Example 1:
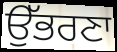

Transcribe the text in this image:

ਉੱਭਰਣਾ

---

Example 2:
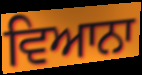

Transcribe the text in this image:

ਵਿਆਨਾ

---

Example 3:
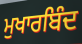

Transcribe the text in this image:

ਮੁਖਾਰਬਿੰਦ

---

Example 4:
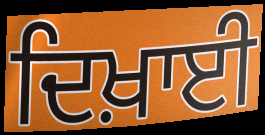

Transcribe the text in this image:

ਦਿਖ਼ਾਈ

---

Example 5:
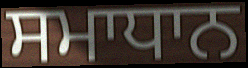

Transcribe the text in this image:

ਸਮਾਧਾਨ